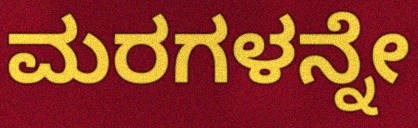
ಮರಗಳನ್ನೇ